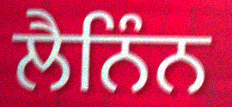
ਲੈਨਿੰਨ